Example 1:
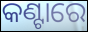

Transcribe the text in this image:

କଣ୍ଟାରେ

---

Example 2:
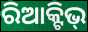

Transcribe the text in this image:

ରିଆକ୍ଟିଭ୍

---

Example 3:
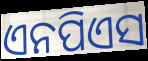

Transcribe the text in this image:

ଏନପିଏସ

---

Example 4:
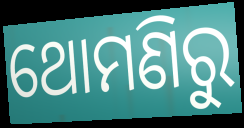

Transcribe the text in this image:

ଥୋମଣିରୁ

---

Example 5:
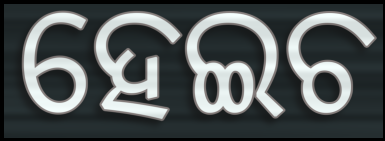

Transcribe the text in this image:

ହେଇଚ